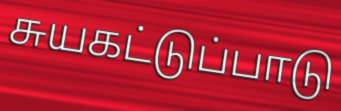
சுயகட்டுப்பாடு